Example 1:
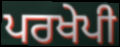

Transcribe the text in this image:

ਪਰਖੇਪੀ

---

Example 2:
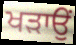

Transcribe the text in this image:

ਖੜਾਉਂ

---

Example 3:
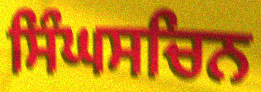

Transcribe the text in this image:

ਸਿੰਘਸਚਿਨ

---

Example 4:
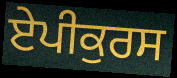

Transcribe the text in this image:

ਏਪੀਕੁਰਸ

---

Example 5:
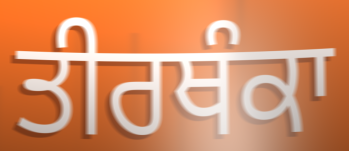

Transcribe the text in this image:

ਤੀਰਥੰਕਾ